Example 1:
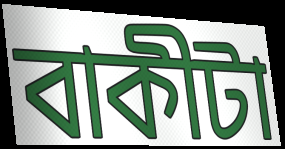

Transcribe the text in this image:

বাকীটা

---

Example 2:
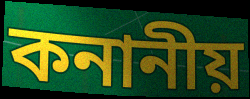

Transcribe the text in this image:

কনানীয়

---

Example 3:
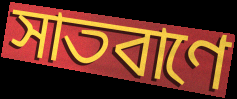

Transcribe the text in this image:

সাতবাণে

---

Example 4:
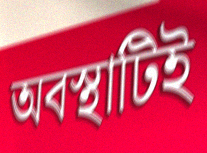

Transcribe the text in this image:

অবস্থাটিই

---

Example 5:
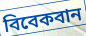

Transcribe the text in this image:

বিবেকবান